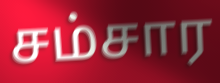
சம்சார